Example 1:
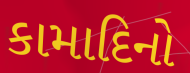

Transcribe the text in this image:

કામાદિનો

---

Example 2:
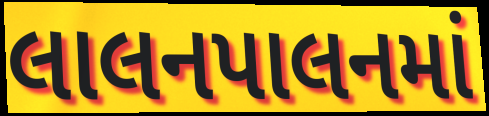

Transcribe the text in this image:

લાલનપાલનમાં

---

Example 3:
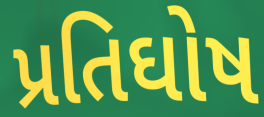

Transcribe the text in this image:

પ્રતિઘોષ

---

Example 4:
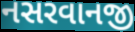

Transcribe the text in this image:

નસરવાનજી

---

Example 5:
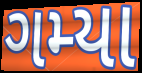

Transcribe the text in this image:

ગમ્યા